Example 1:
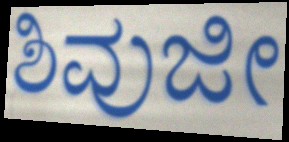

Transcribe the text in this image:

ಶಿವುಜೀ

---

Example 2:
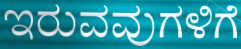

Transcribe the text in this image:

ಇರುವವುಗಳಿಗೆ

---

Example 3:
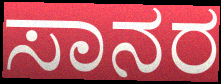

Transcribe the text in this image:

ಸಾನರ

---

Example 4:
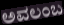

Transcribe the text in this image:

ಅವಲಂಬ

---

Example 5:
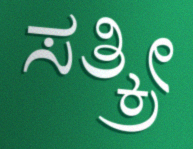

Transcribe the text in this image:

ಸತ್ಕ್ರೀ